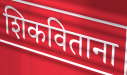
शिकविताना